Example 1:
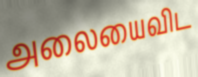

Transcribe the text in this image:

அலையைவிட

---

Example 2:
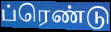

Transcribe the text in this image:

ப்ரெண்டு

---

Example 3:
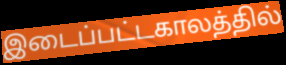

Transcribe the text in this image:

இடைப்பட்டகாலத்தில்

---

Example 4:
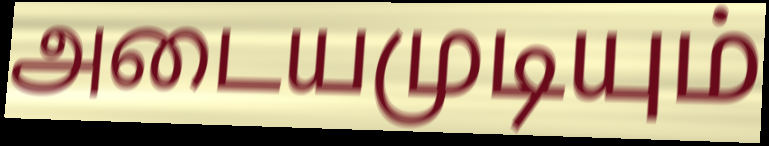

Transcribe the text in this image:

அடையமுடியும்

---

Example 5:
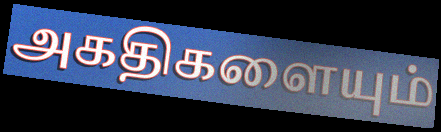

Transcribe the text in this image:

அகதிகளையும்